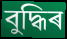
বুদ্ধিৰ